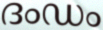
ദംഡം